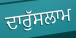
ਦਾਰੁੱਸਲਾਮ